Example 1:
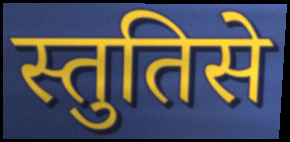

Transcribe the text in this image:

स्तुतिसे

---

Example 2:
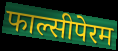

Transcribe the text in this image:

फाल्सीपेरम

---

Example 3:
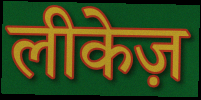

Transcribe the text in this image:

लीकेज़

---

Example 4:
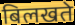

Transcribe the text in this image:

बिलखते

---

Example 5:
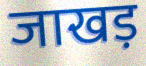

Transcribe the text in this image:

जाखड़